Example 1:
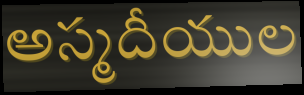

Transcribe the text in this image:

అస్మదీయుల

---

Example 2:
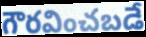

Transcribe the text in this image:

గౌరవించబడే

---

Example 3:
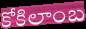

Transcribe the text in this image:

కోకిలాంబ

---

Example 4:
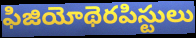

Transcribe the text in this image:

ఫిజియోథెరపిస్టులు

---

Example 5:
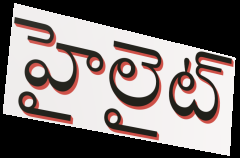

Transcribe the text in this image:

హైలైట్